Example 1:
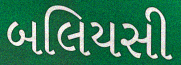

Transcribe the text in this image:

બલિયસી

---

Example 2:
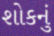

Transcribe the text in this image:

શોકનું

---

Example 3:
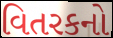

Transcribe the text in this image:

વિતરકનો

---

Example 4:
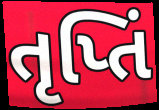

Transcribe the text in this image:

તૃપ્તિં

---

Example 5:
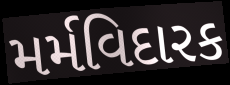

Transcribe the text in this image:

મર્મવિદારક